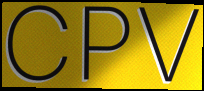
CPV